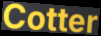
Cotter